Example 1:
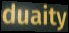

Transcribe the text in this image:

duaity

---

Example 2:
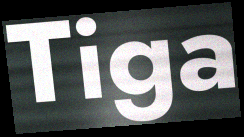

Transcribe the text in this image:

Tiga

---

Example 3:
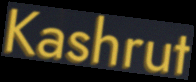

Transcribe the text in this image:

Kashrut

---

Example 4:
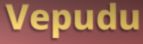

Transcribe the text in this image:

Vepudu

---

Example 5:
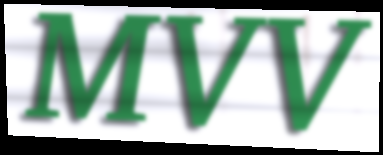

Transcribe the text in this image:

MVV